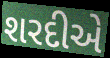
શરદીએ